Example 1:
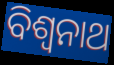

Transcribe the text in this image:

ବିଶ୍ଵନାଥ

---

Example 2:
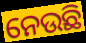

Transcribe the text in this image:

ନେଉଛି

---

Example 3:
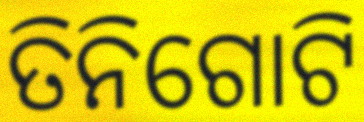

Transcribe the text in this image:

ତିନିଗୋଟି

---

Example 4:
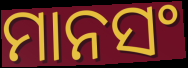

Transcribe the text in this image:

ମାନସଂ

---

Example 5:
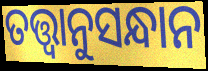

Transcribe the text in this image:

ତତ୍ତ୍ବାନୁସନ୍ଧାନ